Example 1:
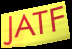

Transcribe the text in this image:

JATF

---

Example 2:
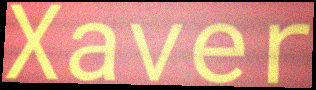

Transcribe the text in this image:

Xaver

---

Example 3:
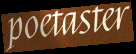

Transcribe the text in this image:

poetaster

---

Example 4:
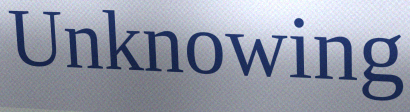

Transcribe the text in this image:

Unknowing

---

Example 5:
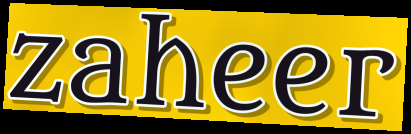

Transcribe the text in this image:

zaheer